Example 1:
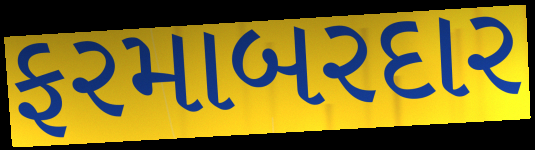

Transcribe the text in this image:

ફરમાબરદાર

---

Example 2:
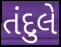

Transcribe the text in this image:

તંદુલે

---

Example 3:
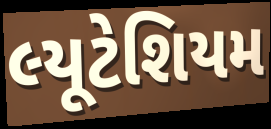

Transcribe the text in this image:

લ્યૂટેશિયમ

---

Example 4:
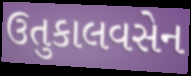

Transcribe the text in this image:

ઉતુકાલવસેન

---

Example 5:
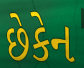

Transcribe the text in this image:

છેકેન